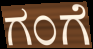
ಗಂಗೆ